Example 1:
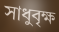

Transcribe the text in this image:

সাধুবৃক্ষ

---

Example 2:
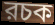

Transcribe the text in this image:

রচক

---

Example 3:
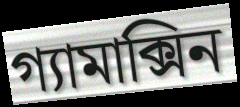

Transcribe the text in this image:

গ্যামাক্সিন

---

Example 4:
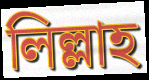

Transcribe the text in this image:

লিল্লাহ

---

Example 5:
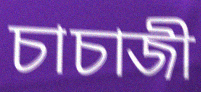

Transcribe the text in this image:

চাচাজী